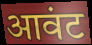
आवंट